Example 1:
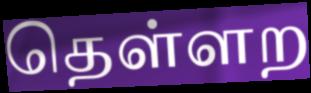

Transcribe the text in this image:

தெள்ளற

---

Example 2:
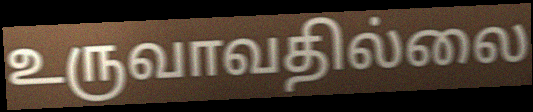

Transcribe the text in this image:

உருவாவதில்லை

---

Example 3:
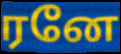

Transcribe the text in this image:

ரனே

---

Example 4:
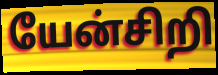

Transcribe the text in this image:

யேன்சிறி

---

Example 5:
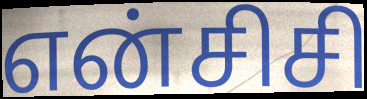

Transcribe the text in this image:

என்சிசி